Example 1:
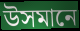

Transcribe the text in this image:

উসমানে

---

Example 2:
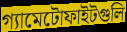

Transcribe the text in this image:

গ্যামেটোফাইটগুলি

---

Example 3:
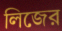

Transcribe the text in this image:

লিজের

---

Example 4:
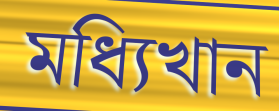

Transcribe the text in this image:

মধ্যিখান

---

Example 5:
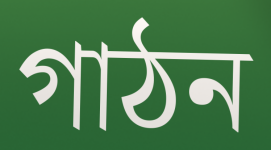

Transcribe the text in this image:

গাঠন